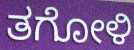
ತಗೋಳಿ